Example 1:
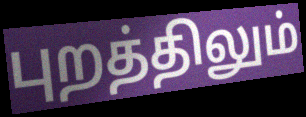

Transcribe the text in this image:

புறத்திலும்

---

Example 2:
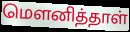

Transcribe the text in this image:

மௌனித்தாள்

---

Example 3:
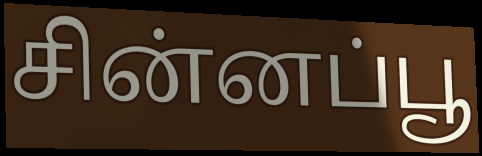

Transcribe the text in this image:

சின்னப்பூ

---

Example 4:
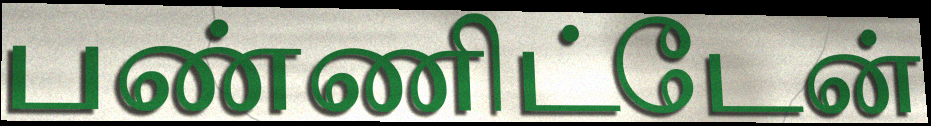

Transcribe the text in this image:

பண்ணிட்டேன்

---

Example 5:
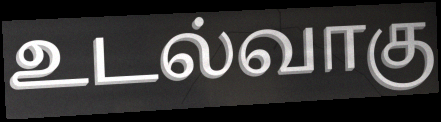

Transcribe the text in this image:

உடல்வாகு